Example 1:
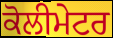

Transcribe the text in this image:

ਕੋਲੀਮੇਟਰ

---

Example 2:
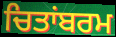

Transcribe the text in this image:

ਚਿਤਾਂਬਰਮ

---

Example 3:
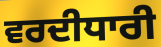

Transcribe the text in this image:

ਵਰਦੀਧਾਰੀ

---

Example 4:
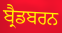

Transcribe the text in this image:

ਬ੍ਰੈਡਬਰਨ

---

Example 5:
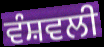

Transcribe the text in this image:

ਵੰਸ਼ਵਲੀ